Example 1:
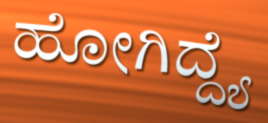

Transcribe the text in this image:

ಹೋಗಿದ್ದ್ಯೆ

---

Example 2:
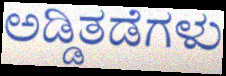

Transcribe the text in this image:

ಅಡ್ಡಿತಡೆಗಳು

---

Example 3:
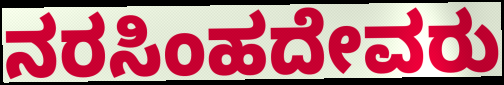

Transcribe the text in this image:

ನರಸಿಂಹದೇವರು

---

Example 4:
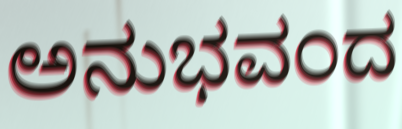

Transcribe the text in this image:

ಅನುಭವಂದ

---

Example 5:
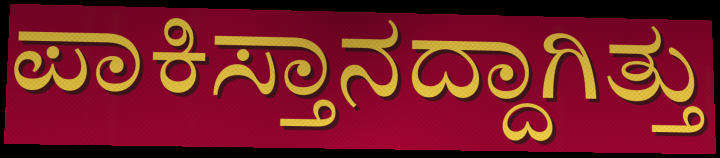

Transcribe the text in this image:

ಪಾಕಿಸ್ತಾನದ್ದಾಗಿತ್ತು